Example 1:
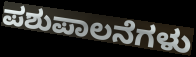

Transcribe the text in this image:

ಪಶುಪಾಲನೆಗಳು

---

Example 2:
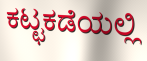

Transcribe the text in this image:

ಕಟ್ಟಕಡೆಯಲ್ಲಿ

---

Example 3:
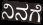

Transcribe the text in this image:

ನಿನಗೆ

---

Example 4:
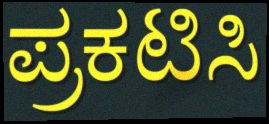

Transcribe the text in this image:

ಪ್ರಕಟಿಸಿ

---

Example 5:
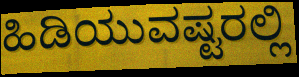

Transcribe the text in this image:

ಹಿಡಿಯುವಷ್ಟರಲ್ಲಿ